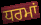
ਧਰਮਾਂ